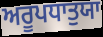
ਅਰੂਪਧਾਤੁਯਾ